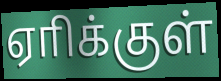
ஏரிக்குள்